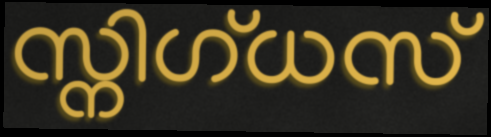
സ്നിഗ്ധസ്